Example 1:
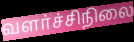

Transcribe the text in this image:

வளர்ச்சிநிலை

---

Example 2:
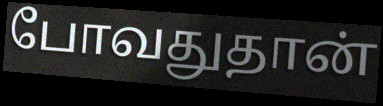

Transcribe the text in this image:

போவதுதான்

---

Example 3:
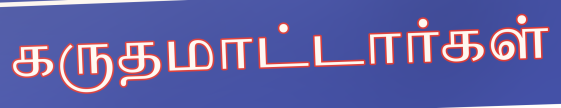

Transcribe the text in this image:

கருதமாட்டார்கள்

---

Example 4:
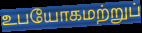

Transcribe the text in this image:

உபயோகமற்றுப்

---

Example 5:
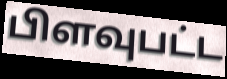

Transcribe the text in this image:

பிளவுபட்ட